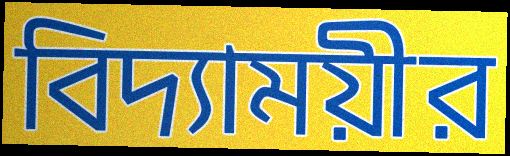
বিদ্যাময়ীর